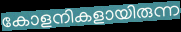
കോളനികളായിരുന്ന